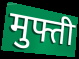
मुफ्ती